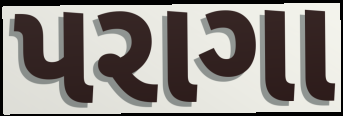
પરાગા